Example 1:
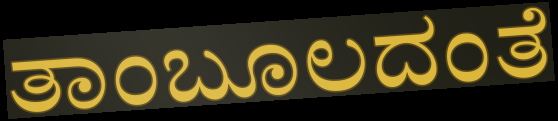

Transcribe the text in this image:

ತಾಂಬೂಲದಂತೆ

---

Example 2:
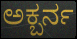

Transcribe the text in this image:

ಅಕ್ಬರ್ನ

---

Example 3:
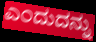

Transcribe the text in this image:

ಎಂದುದನ್ನು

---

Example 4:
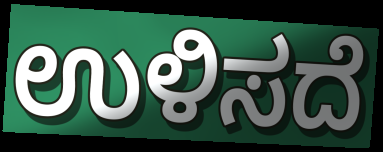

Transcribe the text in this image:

ಉಳಿಸದೆ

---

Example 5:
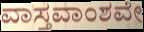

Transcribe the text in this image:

ವಾಸ್ತವಾಂಶವೇ